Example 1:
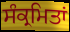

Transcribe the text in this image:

ਸੰਕ੍ਰਮਿਤਾਂ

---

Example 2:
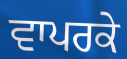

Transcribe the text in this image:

ਵਾਪਰਕੇ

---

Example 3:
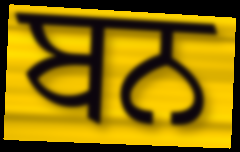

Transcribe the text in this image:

ਬਨ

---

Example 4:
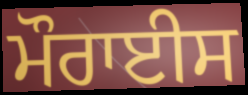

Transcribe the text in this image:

ਮੌਰਾਈਸ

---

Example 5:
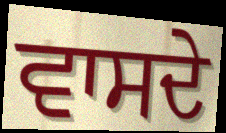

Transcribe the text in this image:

ਵਾਸਦੇ